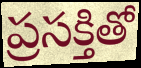
ప్రసక్తితో